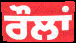
ਰੌਲਾਂ